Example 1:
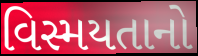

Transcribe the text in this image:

વિસ્મયતાનો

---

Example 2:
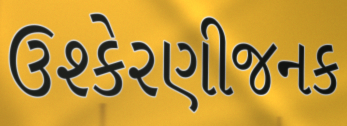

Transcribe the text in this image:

ઉશ્કેરણીજનક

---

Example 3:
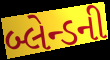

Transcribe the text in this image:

બ્લેન્ડની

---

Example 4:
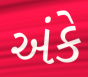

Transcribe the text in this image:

અંકે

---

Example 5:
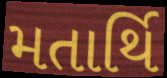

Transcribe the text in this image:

મતાર્થિ